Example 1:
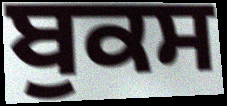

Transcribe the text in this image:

ਬੁਕਸ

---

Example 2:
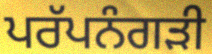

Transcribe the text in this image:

ਪਰੱਪਨੰਗੜੀ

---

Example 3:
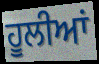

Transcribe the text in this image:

ਹੂਲੀਆਂ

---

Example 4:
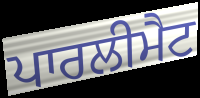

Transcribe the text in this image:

ਪਾਰਲੀਮੈਟ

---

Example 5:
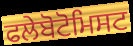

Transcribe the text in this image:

ਫਲੇਬੋਟੋਮਿਸਟ